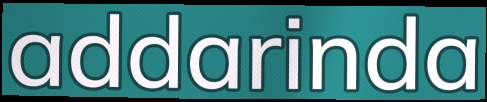
addarinda